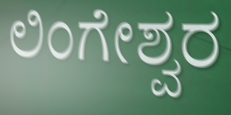
ಲಿಂಗೇಶ್ವರ